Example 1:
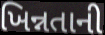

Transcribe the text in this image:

ખિન્નતાની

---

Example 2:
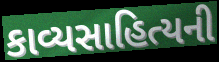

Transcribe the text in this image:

કાવ્યસાહિત્યની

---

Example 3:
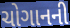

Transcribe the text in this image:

ચોગાનની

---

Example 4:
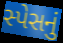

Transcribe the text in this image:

સ્પેસનું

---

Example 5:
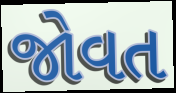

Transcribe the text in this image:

જોવત